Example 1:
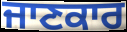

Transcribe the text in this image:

ਜਾਣਕਾਰ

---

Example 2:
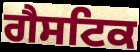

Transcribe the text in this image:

ਗੈਸਟਿਕ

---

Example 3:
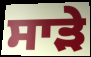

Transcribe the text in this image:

ਸਾੜੇ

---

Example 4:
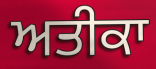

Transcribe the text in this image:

ਅਤੀਕਾ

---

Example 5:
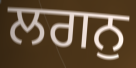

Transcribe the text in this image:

ਲਗਨੁ